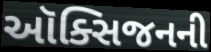
ઑક્સિજનની